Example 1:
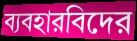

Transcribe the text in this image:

ব্যবহারবিদের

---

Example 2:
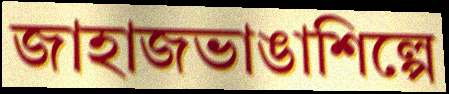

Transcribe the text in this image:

জাহাজভাঙাশিল্পে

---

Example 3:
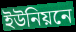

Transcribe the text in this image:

ইউনিয়নে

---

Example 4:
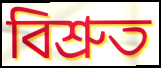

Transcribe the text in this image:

বিশ্রুত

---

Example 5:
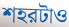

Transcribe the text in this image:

শহরটাও